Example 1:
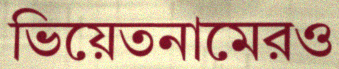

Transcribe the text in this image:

ভিয়েতনামেরও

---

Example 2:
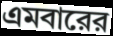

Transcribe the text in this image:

এমবারের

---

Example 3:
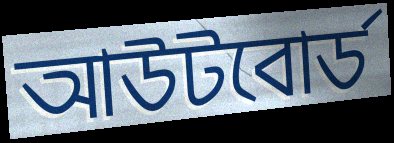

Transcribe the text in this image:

আউটবোর্ড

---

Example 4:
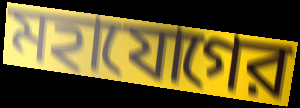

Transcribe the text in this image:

মহাযোগের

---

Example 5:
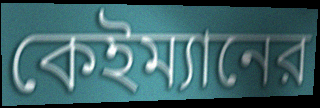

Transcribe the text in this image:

কেইম্যানের